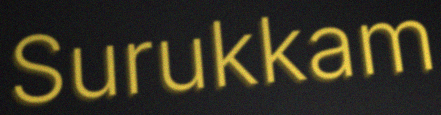
Surukkam